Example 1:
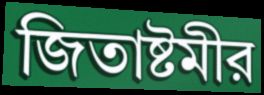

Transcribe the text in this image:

জিতাষ্টমীর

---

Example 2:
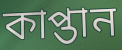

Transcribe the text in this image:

কাপ্তান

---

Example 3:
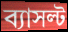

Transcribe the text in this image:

ব্যাসল্ট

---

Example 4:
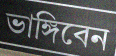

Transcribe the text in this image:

ভাঙ্গিবেন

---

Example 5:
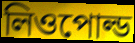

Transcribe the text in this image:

লিওপোল্ড